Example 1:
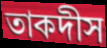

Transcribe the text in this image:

তাকদীস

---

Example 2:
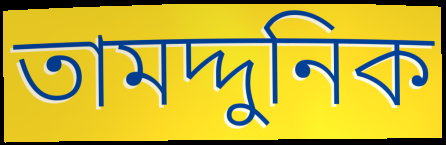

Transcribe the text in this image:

তামদ্দুনিক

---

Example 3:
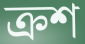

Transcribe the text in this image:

ক্রশ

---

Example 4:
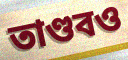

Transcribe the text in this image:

তাণ্ডবও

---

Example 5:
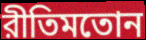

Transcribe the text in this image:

রীতিমতোন